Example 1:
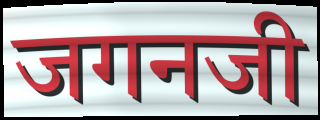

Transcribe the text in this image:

जगनजी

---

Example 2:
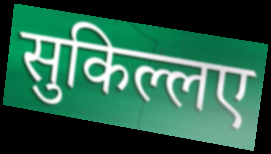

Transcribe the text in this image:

सुकिल्लए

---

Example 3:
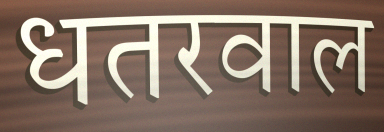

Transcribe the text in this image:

धतरवाल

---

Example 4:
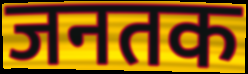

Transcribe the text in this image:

जनतक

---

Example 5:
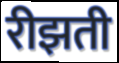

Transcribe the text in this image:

रीझती